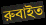
রুবাইত